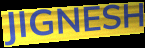
JIGNESH